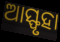
ଆସ୍ଫୃହା